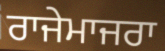
ਰਾਜੇਮਾਜਰਾ